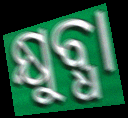
କ୍ଷୁବ୍ଧା